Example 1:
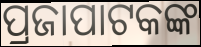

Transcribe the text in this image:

ପ୍ରଜାପାଟକଙ୍କ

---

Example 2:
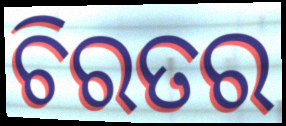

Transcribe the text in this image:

ଚିରତର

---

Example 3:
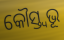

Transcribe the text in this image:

କୌସ୍ତ୍ୱଭୂ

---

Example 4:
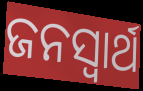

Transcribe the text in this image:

ଜନସ୍ଵାର୍ଥ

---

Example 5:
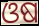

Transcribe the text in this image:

ଓଷ